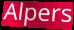
Alpers